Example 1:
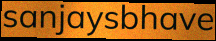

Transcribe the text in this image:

sanjaysbhave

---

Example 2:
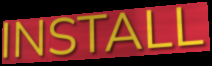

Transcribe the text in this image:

INSTALL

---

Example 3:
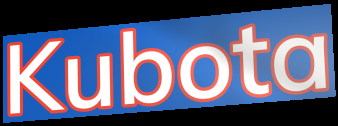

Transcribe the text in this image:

Kubota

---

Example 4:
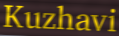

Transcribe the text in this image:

Kuzhavi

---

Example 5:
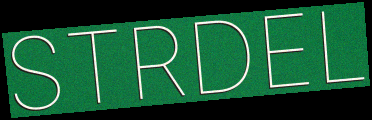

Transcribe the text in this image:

STRDEL